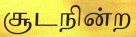
சூடநின்ற